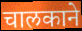
चालकाने